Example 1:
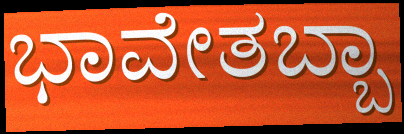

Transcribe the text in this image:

ಭಾವೇತಬ್ಬಾ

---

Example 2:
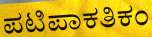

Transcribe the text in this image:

ಪಟಿಪಾಕತಿಕಂ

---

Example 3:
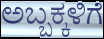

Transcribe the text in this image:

ಅಬ್ಬಕ್ಕಳಿಗೆ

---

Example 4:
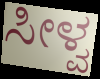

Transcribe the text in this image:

ಸೀಳ್ವ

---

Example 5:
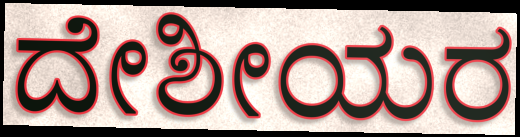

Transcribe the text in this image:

ದೇಶೀಯರ